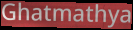
Ghatmathya